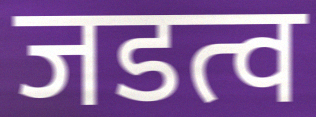
जडत्व